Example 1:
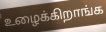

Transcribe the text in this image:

உழைக்கிறாங்க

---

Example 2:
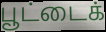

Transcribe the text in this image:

பூட்டைக்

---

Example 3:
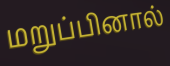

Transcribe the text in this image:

மறுப்பினால்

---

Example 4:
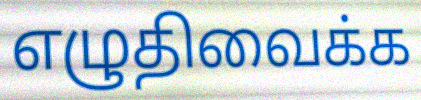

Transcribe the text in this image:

எழுதிவைக்க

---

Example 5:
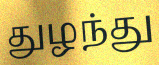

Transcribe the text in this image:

துழந்து